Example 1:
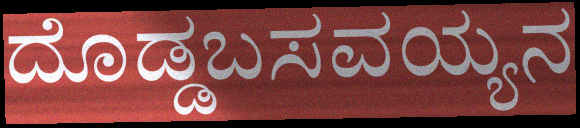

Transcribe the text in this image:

ದೊಡ್ಡಬಸವಯ್ಯನ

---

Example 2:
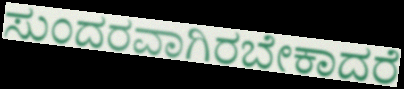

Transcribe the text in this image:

ಸುಂದರವಾಗಿರಬೇಕಾದರೆ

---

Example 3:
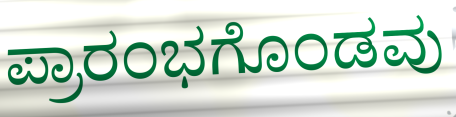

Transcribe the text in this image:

ಪ್ರಾರಂಭಗೊಂಡವು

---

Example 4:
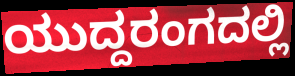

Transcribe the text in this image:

ಯುದ್ದರಂಗದಲ್ಲಿ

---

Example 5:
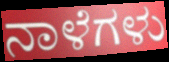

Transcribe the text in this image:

ನಾಳೆಗಳು